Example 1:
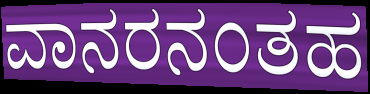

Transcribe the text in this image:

ವಾನರನಂತಹ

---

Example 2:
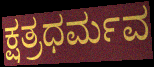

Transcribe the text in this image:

ಕ್ಷತ್ರಧರ್ಮವ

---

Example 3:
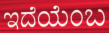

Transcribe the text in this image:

ಇದೆಯೆಂಬ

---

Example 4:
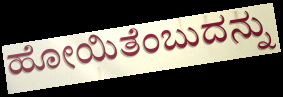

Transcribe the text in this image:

ಹೋಯಿತೆಂಬುದನ್ನು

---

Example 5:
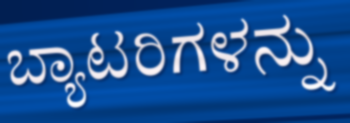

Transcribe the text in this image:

ಬ್ಯಾಟರಿಗಳನ್ನು